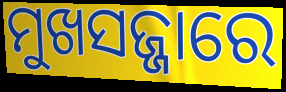
ମୁଖସଜ୍ଜାରେ